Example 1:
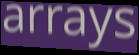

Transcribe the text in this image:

arrays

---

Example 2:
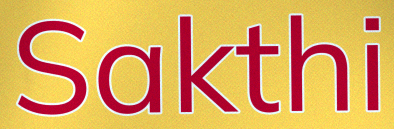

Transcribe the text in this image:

Sakthi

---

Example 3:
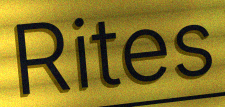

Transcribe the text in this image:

Rites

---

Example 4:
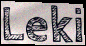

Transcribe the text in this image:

Leki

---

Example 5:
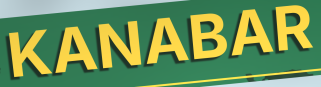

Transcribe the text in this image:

KANABAR